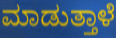
ಮಾಡುತ್ತಾಳೆ